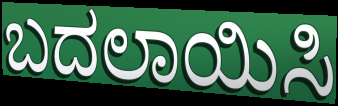
ಬದಲಾಯಿಸಿ